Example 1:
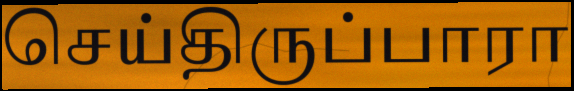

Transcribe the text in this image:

செய்திருப்பாரா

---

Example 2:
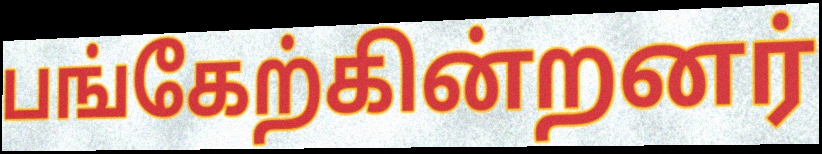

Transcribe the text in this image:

பங்கேற்கின்றனர்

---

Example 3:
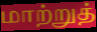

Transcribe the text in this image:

மாற்றுத்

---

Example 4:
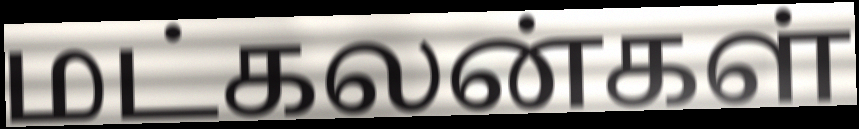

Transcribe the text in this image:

மட்கலன்கள்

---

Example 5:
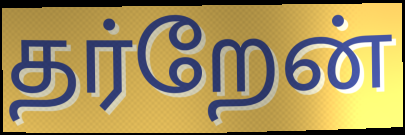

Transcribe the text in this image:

தர்றேன்